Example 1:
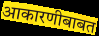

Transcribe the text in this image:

आकारणीबाबत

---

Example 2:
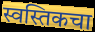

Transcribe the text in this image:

स्वस्तिकचा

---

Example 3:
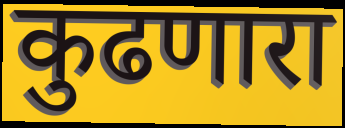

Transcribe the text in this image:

कुढणारा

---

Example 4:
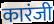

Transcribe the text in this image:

कारंजी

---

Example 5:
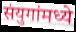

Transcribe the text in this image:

संयुगांमध्ये